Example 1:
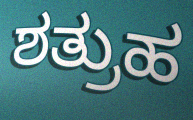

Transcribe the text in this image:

ಶತ್ರುಹ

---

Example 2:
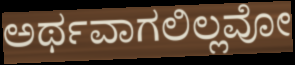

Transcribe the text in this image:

ಅರ್ಥವಾಗಲಿಲ್ಲವೋ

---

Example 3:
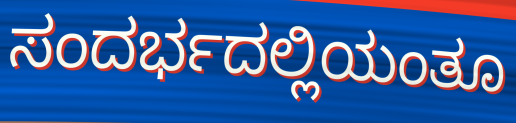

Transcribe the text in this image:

ಸಂದರ್ಭದಲ್ಲಿಯಂತೂ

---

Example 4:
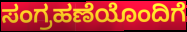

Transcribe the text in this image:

ಸಂಗ್ರಹಣೆಯೊಂದಿಗೆ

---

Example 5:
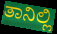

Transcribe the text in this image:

ತಾನಿಲ್ಲಿ